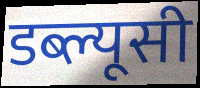
डब्ल्यूसी